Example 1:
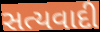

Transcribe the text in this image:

સત્યવાદી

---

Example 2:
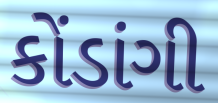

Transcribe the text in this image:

કોંડાંગી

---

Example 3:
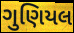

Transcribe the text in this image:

ગુણિયલ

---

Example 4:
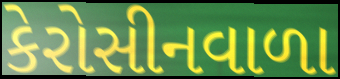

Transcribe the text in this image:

કેરોસીનવાળા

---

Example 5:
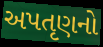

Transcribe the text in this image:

અપતૃણનો